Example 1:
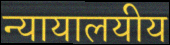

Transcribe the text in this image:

न्यायालयीय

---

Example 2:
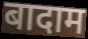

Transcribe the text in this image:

बादाम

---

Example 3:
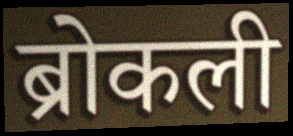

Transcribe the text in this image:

ब्रोकली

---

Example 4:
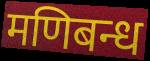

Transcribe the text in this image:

मणिबन्ध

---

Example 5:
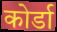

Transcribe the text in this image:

कोर्डा